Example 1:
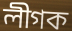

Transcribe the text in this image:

লীগক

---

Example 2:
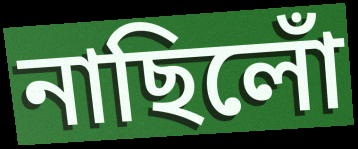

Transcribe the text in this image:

নাছিলোঁ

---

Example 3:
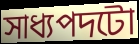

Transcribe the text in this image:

সাধ্যপদটো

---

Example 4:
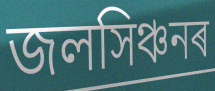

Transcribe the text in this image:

জলসিঞ্চনৰ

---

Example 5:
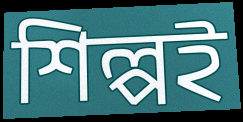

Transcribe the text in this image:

শিল্পই